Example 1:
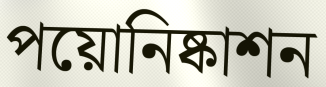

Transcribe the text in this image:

পয়োনিষ্কাশন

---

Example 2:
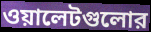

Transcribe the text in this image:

ওয়ালেটগুলোর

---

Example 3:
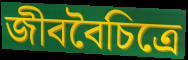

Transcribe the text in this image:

জীববৈচিত্রে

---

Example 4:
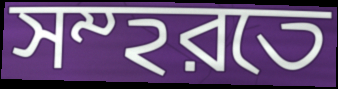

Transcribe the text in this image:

সম্হরতে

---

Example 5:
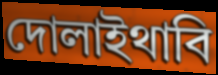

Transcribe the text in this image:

দোলাইথাবি